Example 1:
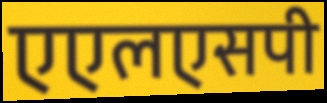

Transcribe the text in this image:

एएलएसपी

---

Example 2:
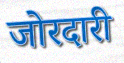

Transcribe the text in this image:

जोरदारी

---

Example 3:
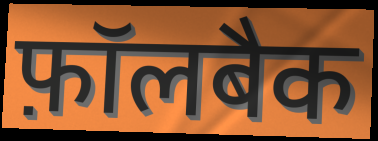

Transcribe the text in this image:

फ़ॉलबैक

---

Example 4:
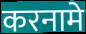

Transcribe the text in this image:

करनामे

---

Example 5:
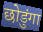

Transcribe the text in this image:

छोडुंगा